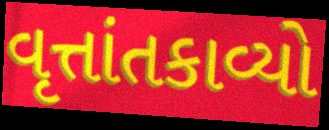
વૃત્તાંતકાવ્યો